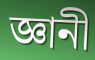
জ্ঞানী